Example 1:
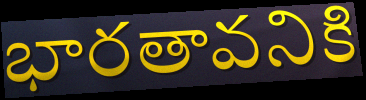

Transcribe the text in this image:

భారతావనికి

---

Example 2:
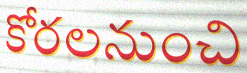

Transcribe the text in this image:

కోరలనుంచి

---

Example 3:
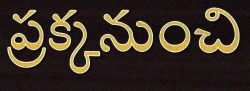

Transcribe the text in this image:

ప్రక్కనుంచి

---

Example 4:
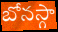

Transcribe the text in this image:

బోనస్గా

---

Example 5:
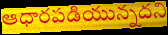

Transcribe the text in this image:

ఆధారపడియున్నదని